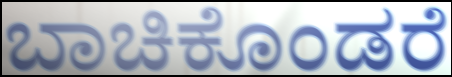
ಬಾಚಿಕೊಂಡರೆ